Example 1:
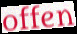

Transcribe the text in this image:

offen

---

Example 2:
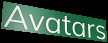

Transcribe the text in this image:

Avatars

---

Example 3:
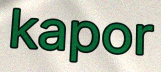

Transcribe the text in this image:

kapor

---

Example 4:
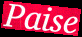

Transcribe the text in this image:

Paise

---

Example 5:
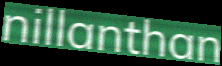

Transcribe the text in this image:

nillanthan